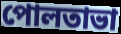
পোলতাভা